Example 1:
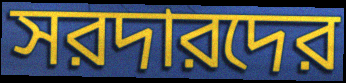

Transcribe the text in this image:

সরদারদের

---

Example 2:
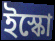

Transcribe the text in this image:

ইস্কো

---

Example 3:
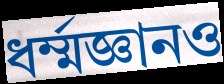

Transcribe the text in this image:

ধর্ম্মজ্ঞানও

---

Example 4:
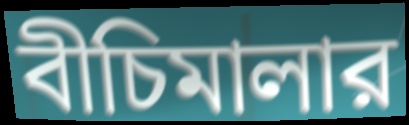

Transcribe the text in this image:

বীচিমালার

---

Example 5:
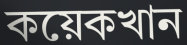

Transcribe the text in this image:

কয়েকখান